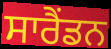
ਸਾਰੈਂਡਨ